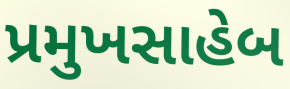
પ્રમુખસાહેબ